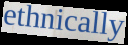
ethnically